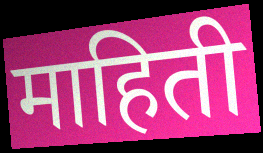
माहिती